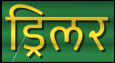
ड्रिलर